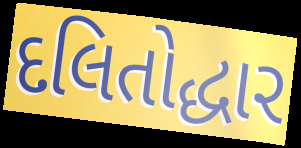
દલિતોદ્ધાર